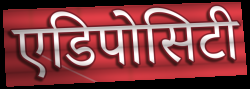
एडिपोसिटी